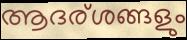
ആദര്ശങ്ങളും